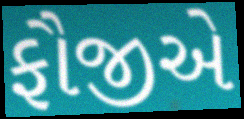
ફૌજીએ